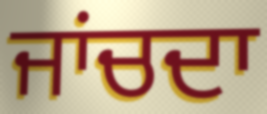
ਜਾਂਚਦਾ